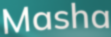
Masha